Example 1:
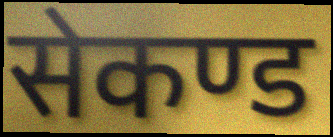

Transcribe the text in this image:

सेकण्ड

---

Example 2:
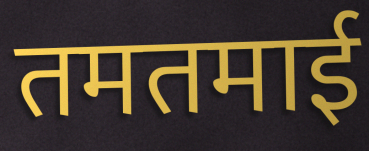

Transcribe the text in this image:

तमतमाई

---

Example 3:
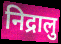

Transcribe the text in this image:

निद्रालु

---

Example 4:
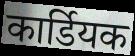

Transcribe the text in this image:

कार्डियक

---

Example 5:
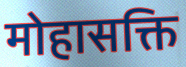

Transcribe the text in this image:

मोहासक्ति